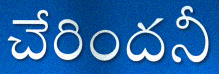
చేరిందనీ